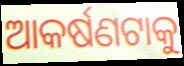
ଆକର୍ଷଣଟାକୁ